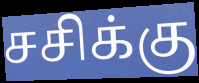
சசிக்கு